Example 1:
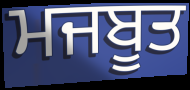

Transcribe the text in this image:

ਮਜਬੂਤ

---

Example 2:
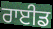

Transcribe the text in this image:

ਰਾਈਡ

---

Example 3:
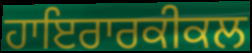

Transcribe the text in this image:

ਹਾਇਰਾਰਕੀਕਲ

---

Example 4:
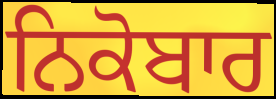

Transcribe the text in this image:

ਨਿਕੋਬਾਰ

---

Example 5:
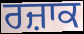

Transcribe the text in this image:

ਰਜ਼ਾਕ